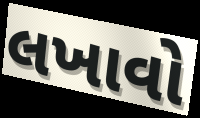
લખાવો